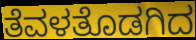
ತೆವಳತೊಡಗಿದ